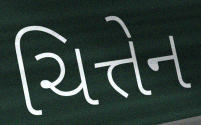
ચિત્તેન